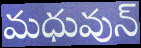
మధువున్